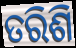
ତରିଶି